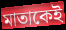
মাতাকেই